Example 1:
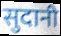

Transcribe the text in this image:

सुदानी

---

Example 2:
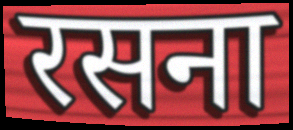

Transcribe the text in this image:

रसना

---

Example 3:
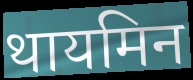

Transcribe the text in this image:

थायमिन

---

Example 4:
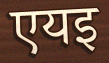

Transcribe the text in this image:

एयइ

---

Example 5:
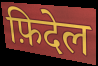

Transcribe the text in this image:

फ़िदेल